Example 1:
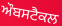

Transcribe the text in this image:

ਔਬਸਟੈਕਲ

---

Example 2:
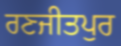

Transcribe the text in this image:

ਰਣਜੀਤਪੁਰ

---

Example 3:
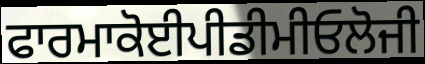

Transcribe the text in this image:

ਫਾਰਮਾਕੋਈਪੀਡੀਮੀਓਲੋਜੀ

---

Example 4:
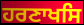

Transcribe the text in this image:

ਹਰਣਾਖਸਿ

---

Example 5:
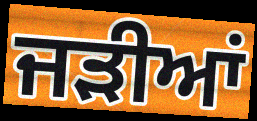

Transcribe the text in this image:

ਜੜੀਆਂ